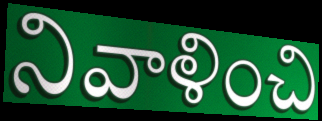
నివాళించి